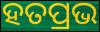
ହତପ୍ରଭ